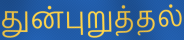
துன்புறுத்தல்